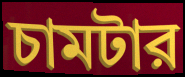
চামটার